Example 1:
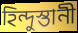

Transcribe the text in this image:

হিন্দুস্তানী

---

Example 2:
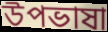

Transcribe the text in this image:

উপভাষা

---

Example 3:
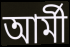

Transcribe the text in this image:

আৰ্মী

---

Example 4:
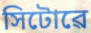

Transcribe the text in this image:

সিটোৱে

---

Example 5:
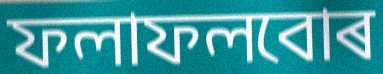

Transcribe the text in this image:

ফলাফলবোৰ